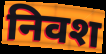
निवश